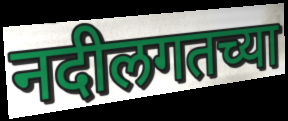
नदीलगतच्या